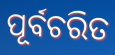
ପୂର୍ବଚରିତ